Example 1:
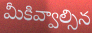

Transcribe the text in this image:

మీకివ్వాల్సిన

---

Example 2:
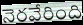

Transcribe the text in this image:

నెరవేరింది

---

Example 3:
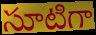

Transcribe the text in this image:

సూటిగా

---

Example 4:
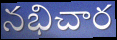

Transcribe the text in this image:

నభిచార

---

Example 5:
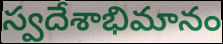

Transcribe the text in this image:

స్వదేశాభిమానం